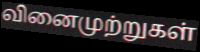
வினைமுற்றுகள்